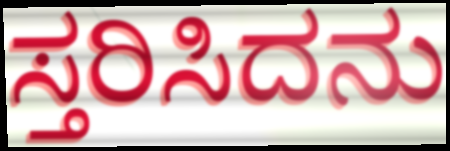
ಸ್ತರಿಸಿದನು